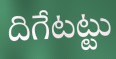
దిగేటట్టు